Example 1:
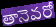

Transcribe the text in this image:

తానెవరో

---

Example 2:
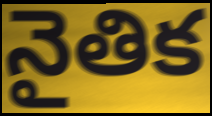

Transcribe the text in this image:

నైతిక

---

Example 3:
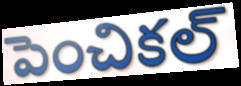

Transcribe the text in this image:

పెంచికల్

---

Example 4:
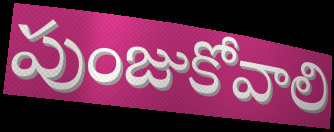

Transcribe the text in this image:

పుంజుకోవాలి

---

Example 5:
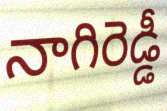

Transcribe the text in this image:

నాగిరెడ్డీ